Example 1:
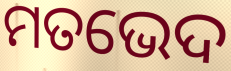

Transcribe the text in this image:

ମତଭେଦ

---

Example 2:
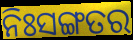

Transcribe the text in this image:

ନିଃସଙ୍ଗତର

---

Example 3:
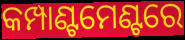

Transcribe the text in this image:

କମ୍ପାଣ୍ଟମେଣ୍ଟରେ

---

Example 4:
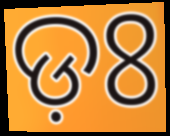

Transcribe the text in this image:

ଡ଼ଃ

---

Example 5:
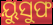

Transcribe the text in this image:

ୟୁସୁଫ